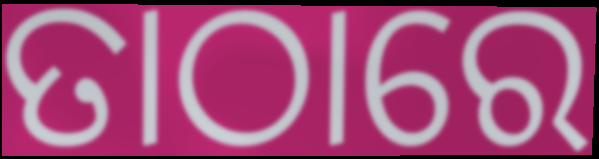
ତାଠାରେ